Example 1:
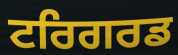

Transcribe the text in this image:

ਟਰਿਗਰਡ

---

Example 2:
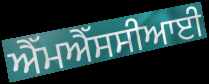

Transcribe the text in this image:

ਐੱਮਐੱਸਸੀਆਈ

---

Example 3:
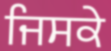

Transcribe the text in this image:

ਜਿਸਕੇ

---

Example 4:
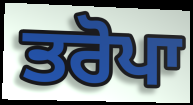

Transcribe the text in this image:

ਤਰੋਪਾ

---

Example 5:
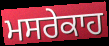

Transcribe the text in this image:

ਮਸਰੇਕਾਹ